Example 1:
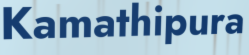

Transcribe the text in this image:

Kamathipura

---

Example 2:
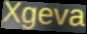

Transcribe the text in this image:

Xgeva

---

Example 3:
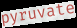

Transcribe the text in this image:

pyruvate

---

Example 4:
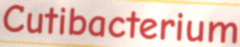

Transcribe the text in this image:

Cutibacterium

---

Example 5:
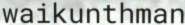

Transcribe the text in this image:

waikunthman